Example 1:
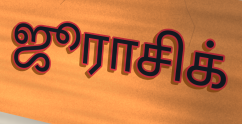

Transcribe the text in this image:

ஜூராசிக்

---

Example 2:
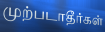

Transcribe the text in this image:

முற்படாதீர்கள்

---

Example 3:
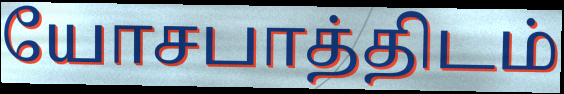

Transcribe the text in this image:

யோசபாத்திடம்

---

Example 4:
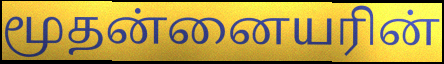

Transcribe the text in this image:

மூதன்னையரின்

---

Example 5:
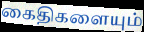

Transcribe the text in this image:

கைதிகளையும்